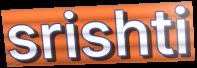
srishti